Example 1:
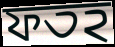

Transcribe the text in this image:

ফতহ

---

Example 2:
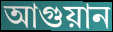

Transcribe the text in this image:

আগুয়ান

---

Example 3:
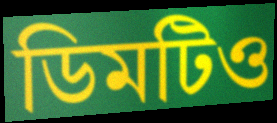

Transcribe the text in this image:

ডিমটিও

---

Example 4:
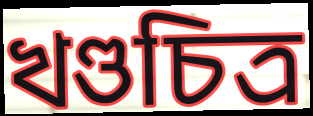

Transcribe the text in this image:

খণ্ডচিত্র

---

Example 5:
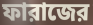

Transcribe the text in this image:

ফারাজের